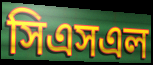
সিএসএল